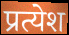
प्रत्येश